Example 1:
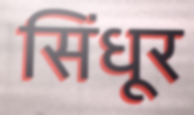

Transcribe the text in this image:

सिंधूर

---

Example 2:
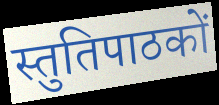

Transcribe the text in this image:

स्तुतिपाठकों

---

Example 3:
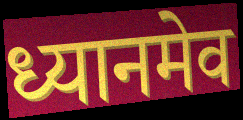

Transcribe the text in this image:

ध्यानमेव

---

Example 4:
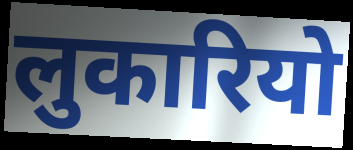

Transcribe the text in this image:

लुकारियो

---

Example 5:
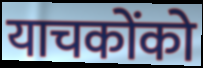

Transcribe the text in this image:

याचकोंको